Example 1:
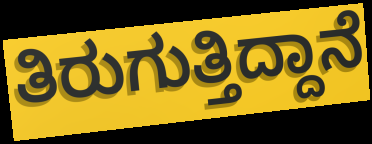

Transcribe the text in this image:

ತಿರುಗುತ್ತಿದ್ದಾನೆ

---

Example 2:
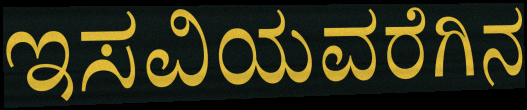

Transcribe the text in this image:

ಇಸವಿಯವರೆಗಿನ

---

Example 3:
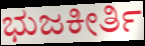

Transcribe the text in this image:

ಭುಜಕೀರ್ತಿ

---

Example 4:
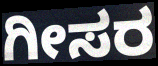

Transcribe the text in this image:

ಗೀಸರ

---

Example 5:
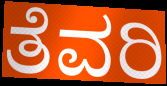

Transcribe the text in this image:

ತೆವರಿ